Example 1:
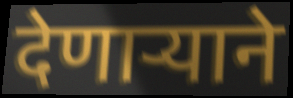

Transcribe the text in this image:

देणार्‍याने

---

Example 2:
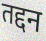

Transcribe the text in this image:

तद्दन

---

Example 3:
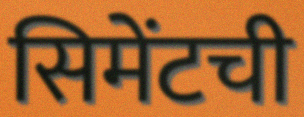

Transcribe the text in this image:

सिमेंटची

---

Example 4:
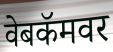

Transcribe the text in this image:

वेबकॅमवर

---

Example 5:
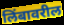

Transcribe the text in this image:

लिंबावरील